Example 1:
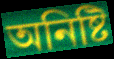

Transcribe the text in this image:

অনিষ্টি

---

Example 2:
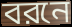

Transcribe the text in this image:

বরনে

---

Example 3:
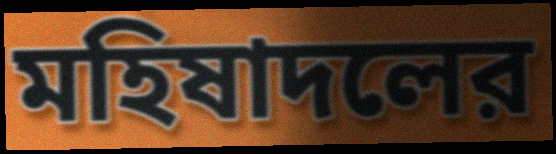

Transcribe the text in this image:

মহিষাদলের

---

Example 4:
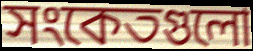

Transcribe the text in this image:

সংকেতগুলো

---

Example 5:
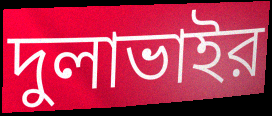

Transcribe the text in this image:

দুলাভাইর